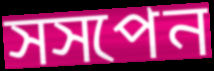
সসপেন